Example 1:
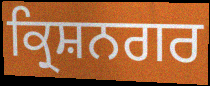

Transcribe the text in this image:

ਕ੍ਰਿਸ਼ਨਗਰ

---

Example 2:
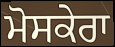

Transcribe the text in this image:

ਮੋਸਕੇਰਾ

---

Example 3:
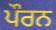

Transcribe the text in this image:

ਪੌਰਨ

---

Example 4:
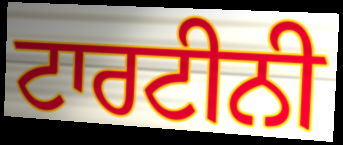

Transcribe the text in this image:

ਟਾਰਟੀਨੀ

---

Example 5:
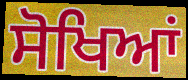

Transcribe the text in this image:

ਸੋਖਿਆਂ